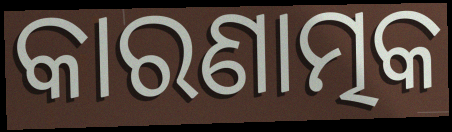
କାରଣାତ୍ମକ